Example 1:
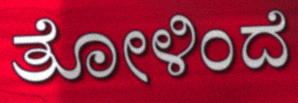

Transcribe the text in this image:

ತೋಳಿಂದೆ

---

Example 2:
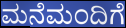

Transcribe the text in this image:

ಮನೆಮಂದಿಗೆ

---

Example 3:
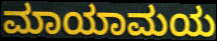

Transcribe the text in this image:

ಮಾಯಾಮಯ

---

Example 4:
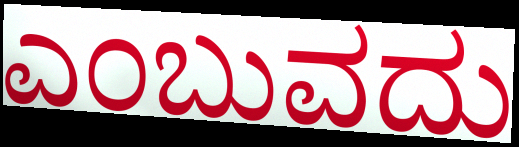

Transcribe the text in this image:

ಎಂಬುವದು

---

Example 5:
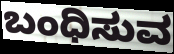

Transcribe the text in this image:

ಬಂಧಿಸುವ